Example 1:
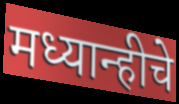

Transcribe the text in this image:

मध्यान्हीचे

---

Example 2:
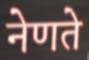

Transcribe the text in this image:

नेणते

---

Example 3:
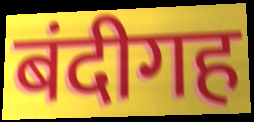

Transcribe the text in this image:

बंदीगह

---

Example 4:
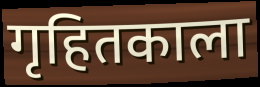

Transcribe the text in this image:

गृहितकाला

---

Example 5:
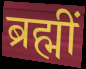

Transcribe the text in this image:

ब्रह्मीं